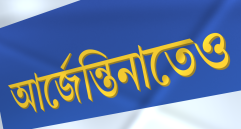
আর্জেন্তিনাতেও